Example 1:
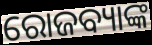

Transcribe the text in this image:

ରୋଜବ୍ୟାଙ୍କ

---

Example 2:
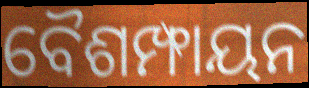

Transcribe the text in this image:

ବୈଶମ୍ଫାୟନ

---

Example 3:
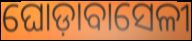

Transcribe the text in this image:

ଘୋଡ଼ାବାସେଳୀ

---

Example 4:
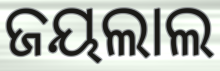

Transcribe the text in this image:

ଜୟଲାଲ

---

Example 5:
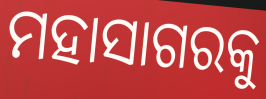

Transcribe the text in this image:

ମହାସାଗରକୁ